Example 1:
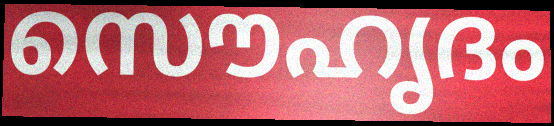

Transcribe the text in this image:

സൌഹൃദം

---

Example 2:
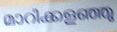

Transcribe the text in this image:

മാറിക്കളഞ്ഞു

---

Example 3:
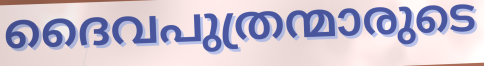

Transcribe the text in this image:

ദൈവപുത്രന്മാരുടെ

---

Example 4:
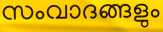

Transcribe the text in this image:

സംവാദങ്ങളും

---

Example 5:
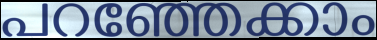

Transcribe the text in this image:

പറഞ്ഞേക്കാം